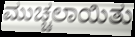
ಮುಚ್ಚಲಾಯಿತು